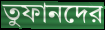
তুফানদের